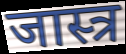
जास्त्र